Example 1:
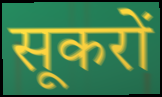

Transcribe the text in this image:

सूकरों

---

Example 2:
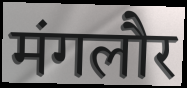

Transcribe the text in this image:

मंगलौर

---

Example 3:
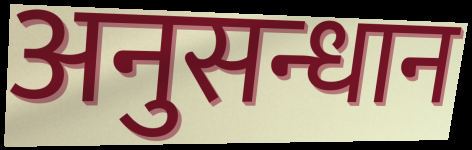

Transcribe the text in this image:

अनुसन्धान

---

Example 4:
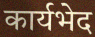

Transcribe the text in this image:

कार्यभेद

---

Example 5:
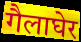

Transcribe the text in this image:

गैलाघेर